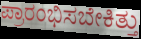
ಪ್ರಾರಂಭಿಸಬೇಕಿತ್ತು